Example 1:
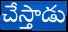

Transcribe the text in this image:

చేస్తాడు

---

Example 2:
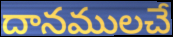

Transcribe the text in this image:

దానములచే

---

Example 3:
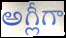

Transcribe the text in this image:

అగ్లీగా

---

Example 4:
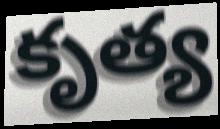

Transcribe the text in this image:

కృత్య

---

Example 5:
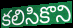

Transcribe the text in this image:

కలిసికొని